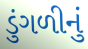
ડુંગળીનું